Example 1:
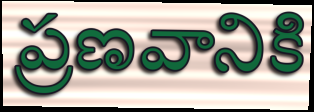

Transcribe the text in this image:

ప్రణవానికి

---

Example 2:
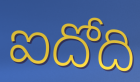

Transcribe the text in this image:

ఐదోది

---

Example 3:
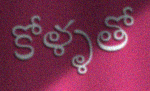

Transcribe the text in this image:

కోళ్ళతో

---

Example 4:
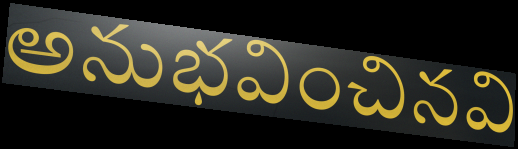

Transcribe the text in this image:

అనుభవించినవి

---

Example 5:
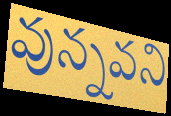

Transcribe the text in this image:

వున్నవని